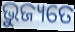
ଭୁଜ୍ୟତେ